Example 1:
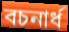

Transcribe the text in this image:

বচনার্ধ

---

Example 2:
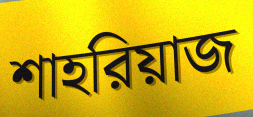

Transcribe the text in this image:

শাহরিয়াজ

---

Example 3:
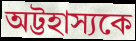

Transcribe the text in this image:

অট্টহাস্যকে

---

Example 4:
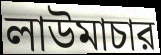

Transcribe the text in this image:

লাউমাচার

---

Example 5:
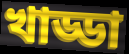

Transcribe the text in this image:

খাড্ডা